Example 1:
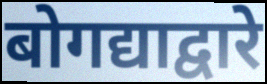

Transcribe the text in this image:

बोगद्याद्वारे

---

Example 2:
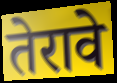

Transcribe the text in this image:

तेरावे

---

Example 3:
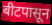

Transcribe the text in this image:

बीटपासून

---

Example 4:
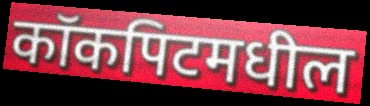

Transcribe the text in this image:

कॉकपिटमधील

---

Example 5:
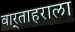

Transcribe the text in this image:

वार्ताहराला